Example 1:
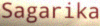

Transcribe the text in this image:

Sagarika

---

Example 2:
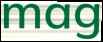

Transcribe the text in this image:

mag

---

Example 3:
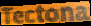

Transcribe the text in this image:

Tectona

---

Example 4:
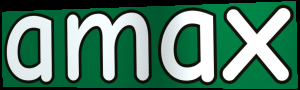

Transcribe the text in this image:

amax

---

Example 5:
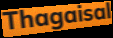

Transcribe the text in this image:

Thagaisal